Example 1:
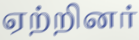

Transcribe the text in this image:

ஏற்றினர்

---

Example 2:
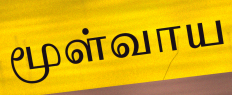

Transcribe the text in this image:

மூள்வாய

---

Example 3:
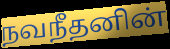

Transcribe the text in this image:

நவநீதனின்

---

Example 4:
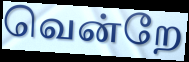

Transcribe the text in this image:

வென்றே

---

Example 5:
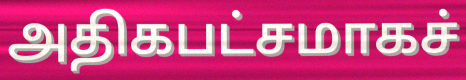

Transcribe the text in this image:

அதிகபட்சமாகச்